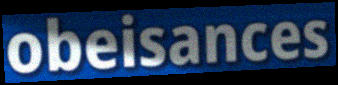
obeisances